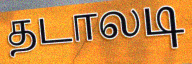
தடாலடி